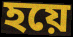
হয়ে